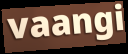
vaangi